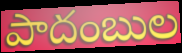
పాదంబుల